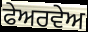
ਫੇਅਰਵੇਅ